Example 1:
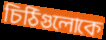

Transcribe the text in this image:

চিঠিগুলোকে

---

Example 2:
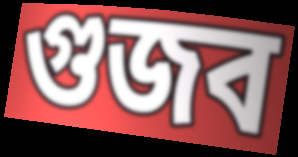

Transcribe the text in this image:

গুজব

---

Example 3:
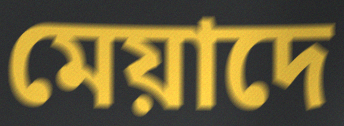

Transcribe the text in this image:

মেয়াদে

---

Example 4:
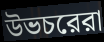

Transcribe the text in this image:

উভচরেরা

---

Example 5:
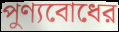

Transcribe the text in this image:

পুণ্যবোধের